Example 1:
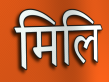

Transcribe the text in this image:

मिलि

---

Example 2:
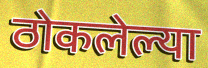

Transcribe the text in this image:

ठोकलेल्या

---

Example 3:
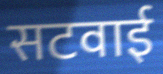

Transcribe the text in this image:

सटवाई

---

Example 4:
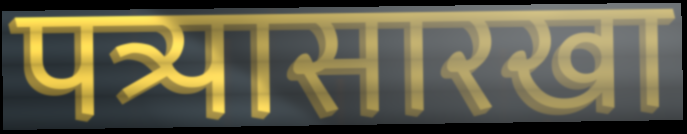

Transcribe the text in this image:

पत्र्यासारखा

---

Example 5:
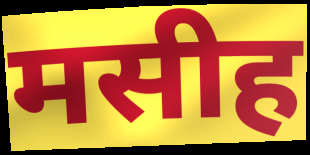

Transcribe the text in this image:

मसीह